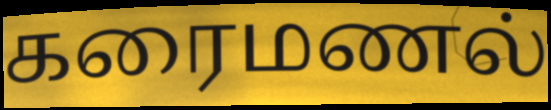
கரைமணல்